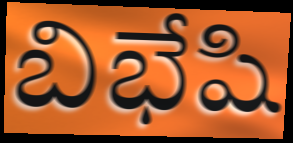
బిభేషి